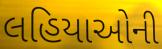
લહિયાઓની